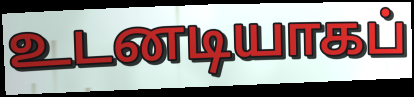
உடனடியாகப்